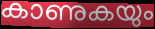
കാണുകയും